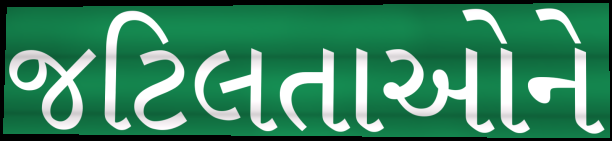
જટિલતાઓને